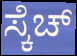
ಸ್ಕೆಚ್